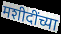
मशीदींच्या